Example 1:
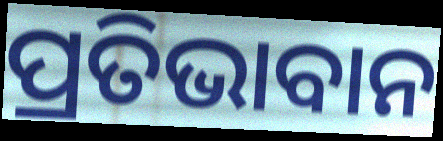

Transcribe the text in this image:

ପ୍ରତିଭାବାନ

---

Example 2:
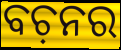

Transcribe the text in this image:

ବଚ଼ନର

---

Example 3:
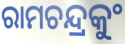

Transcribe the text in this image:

ରାମଚନ୍ଦ୍ରକୁଂ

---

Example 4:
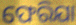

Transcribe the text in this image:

ଫେରିଯା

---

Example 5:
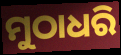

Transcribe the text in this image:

ମୁଠାଧରି